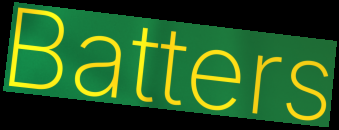
Batters